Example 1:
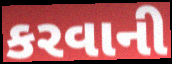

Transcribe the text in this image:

કરવાની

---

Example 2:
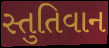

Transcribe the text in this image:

સ્તુતિવાન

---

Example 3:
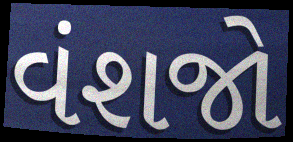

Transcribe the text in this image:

વંશજો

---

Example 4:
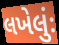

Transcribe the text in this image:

લખેલુંઃ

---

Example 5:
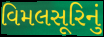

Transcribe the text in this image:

વિમલસૂરિનું